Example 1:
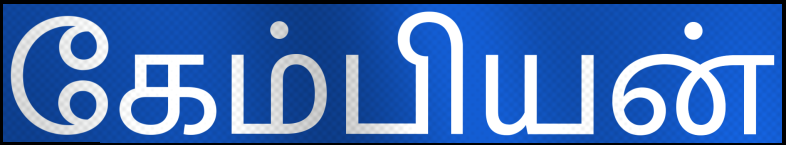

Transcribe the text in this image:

கேம்பியன்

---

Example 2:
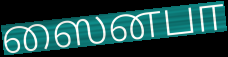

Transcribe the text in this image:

ஸைனபா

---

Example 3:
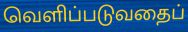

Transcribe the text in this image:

வெளிப்படுவதைப்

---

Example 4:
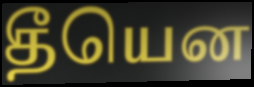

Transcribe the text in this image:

தீயென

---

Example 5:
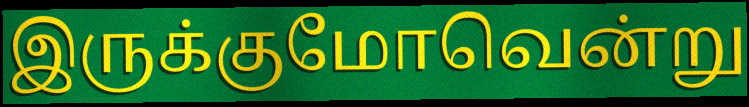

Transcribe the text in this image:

இருக்குமோவென்று